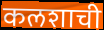
कलशाची